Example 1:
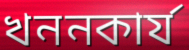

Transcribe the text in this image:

খননকার্য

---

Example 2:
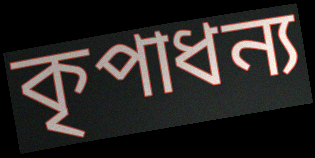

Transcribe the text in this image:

কৃপাধন্য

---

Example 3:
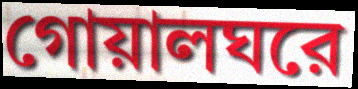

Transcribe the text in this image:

গোয়ালঘরে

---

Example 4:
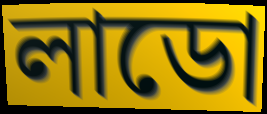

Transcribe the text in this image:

লাডো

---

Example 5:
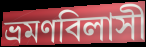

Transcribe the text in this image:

ভ্রমণবিলাসী